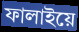
ফালাইয়ে